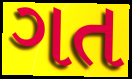
ગત